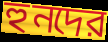
হুনদের